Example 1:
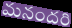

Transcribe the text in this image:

మనందరి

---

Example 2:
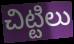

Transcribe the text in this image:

చిట్టిలు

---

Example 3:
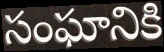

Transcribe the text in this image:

సంఘానికి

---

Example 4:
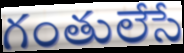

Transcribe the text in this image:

గంతులేసే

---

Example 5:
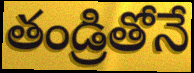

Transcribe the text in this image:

తండ్రితోనే